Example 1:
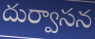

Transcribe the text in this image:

దుర్వాసన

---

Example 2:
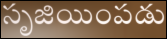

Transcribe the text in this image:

సృజియింపడు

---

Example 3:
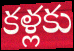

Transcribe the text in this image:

కళ్లకు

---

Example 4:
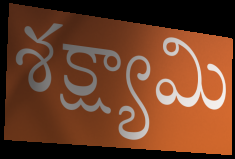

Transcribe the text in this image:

శక్ష్యామి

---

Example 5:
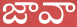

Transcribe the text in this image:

జావా